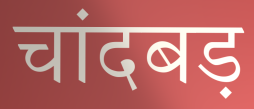
चांदबड़